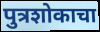
पुत्रशोकाचा